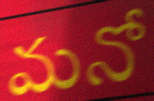
మనో